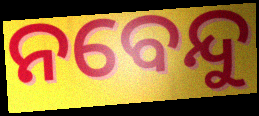
ନବେନ୍ଦୁ